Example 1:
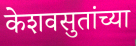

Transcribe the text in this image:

केशवसुतांच्या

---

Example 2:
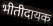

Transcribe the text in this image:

भीतीदायक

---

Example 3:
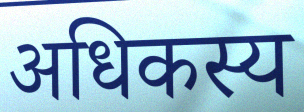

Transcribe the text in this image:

अधिकस्य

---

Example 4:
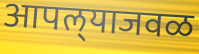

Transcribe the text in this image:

आपल्याजवळ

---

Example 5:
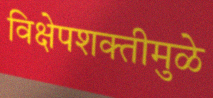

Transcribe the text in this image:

विक्षेपशक्तीमुळे